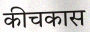
कीचकास